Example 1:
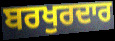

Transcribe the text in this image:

ਬਰਖੁਰਦਾਰ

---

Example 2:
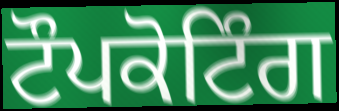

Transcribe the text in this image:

ਟੌਪਕੋਟਿੰਗ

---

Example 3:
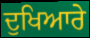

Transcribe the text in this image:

ਦੁਖਿਆਰੇ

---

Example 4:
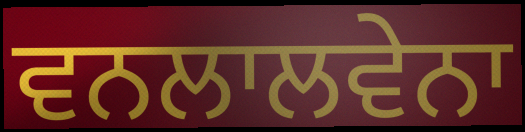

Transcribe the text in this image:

ਵਨਲਾਲਵੇਨਾ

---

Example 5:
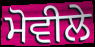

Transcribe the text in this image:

ਮੋਵੀਲੇ